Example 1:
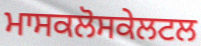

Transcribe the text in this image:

ਮਾਸਕਲੋਸਕੇਲਟਲ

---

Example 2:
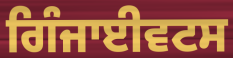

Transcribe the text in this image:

ਗਿੰਜਾਈਵਟਸ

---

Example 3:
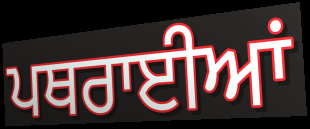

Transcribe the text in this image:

ਪਥਰਾਈਆਂ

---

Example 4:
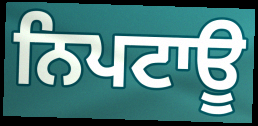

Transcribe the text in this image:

ਨਿਪਟਾਊ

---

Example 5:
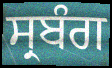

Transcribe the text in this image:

ਸ੍ਰਬੰਗ